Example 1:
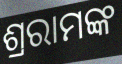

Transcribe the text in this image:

ଶ୍ରରାମଙ୍କ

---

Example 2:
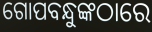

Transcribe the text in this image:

ଗୋପବନ୍ଧୁଙ୍କଠାରେ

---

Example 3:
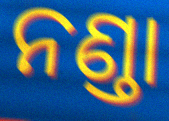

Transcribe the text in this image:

ନଣ୍ଡା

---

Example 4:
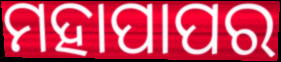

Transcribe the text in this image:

ମହାପାପର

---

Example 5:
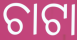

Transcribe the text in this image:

ଚାଟା